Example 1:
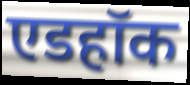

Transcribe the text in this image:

एडहॉक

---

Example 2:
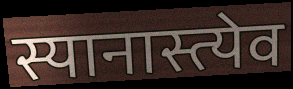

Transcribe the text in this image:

स्यानास्त्येव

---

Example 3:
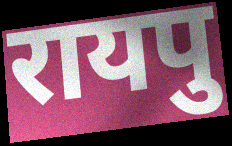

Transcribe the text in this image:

रायपु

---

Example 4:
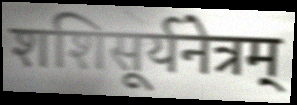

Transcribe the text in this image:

शशिसूर्यनेत्रम्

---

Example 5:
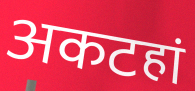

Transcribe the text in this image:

अकटहां